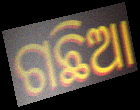
ଗଛିଆ